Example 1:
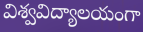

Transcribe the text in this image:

విశ్వవిద్యాలయంగా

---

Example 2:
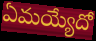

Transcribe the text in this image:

ఏమయ్యేదో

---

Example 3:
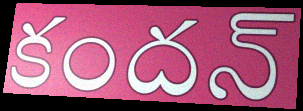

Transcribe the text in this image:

కందన్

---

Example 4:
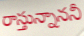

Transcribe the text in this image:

రాస్తున్నాననీ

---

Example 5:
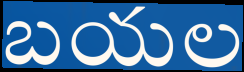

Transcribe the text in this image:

బయల